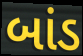
બાંડ